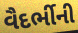
વૈદર્ભીની